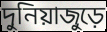
দুনিয়াজুড়ে